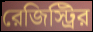
রেজিস্ট্রির